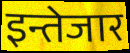
इन्तेजार